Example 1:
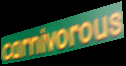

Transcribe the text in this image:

carnivorous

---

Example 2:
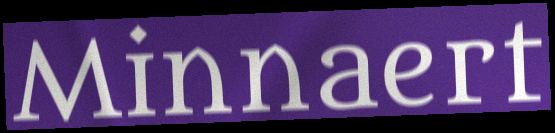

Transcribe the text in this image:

Minnaert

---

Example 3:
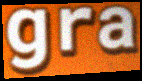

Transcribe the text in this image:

gra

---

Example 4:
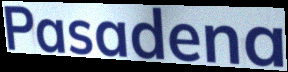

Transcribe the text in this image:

Pasadena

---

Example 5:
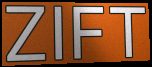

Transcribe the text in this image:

ZIFT